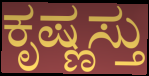
ಕೃಷ್ಣಸ್ತು